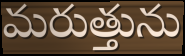
మరుత్తును